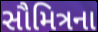
સૌમિત્રના